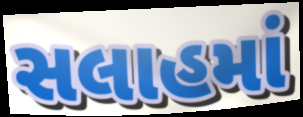
સલાહમાં